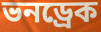
ভনড্রেক